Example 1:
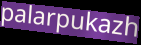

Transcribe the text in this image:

palarpukazh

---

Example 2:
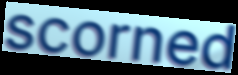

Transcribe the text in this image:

scorned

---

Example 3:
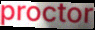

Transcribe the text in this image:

proctor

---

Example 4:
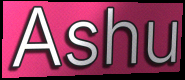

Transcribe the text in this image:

Ashu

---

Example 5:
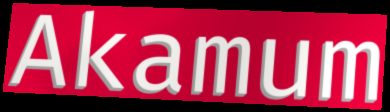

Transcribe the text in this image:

Akamum